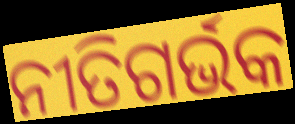
ନୀତିଗର୍ଭକ